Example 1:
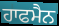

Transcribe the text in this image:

ਹਾਫਮੈਨ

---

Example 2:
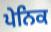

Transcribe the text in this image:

ਪੇਨਿਕ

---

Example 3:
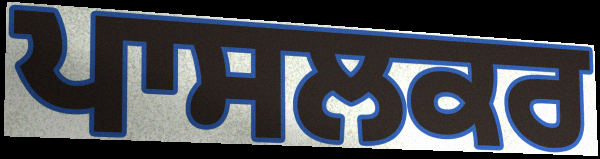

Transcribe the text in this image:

ਪਾਸਲਕਰ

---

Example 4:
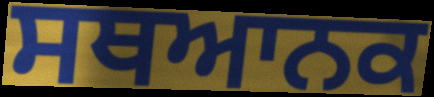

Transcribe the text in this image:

ਸਥਆਨਕ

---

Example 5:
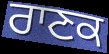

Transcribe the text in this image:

ਰਾਣਕ